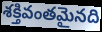
శక్తివంతమైనది